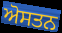
ਅੋਸਤਨ